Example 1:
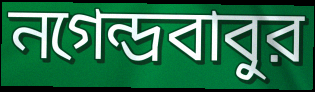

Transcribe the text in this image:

নগেন্দ্রবাবুর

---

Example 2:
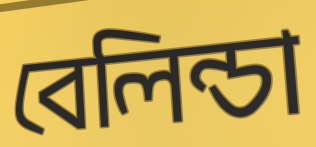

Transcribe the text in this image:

বেলিন্ডা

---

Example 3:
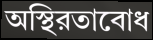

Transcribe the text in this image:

অস্থিরতাবোধ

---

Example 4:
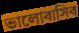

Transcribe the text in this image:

ভালোবাসিব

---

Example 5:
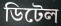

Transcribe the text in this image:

ডিটেল